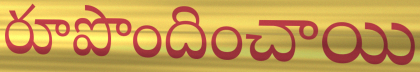
రూపొందించాయి